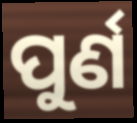
ପୁର୍ଣ